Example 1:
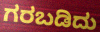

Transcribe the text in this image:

ಗರಬಡಿದು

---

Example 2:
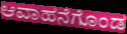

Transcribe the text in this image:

ಆವಾಹನೆಗೊಂಡ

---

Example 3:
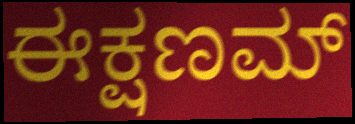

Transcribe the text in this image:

ಈಕ್ಷಣಮ್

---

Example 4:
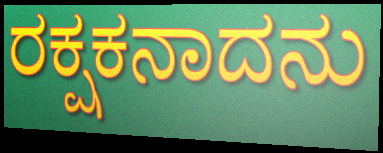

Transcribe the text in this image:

ರಕ್ಷಕನಾದನು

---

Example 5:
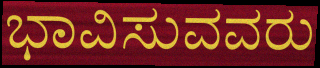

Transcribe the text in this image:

ಭಾವಿಸುವವರು